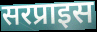
सरप्राइस